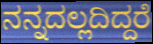
ನನ್ನದಲ್ಲದಿದ್ದರೆ